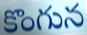
కొంగున